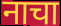
नाचा